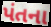
પંતના